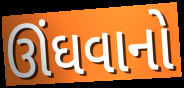
ઊંઘવાનો